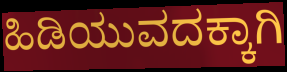
ಹಿಡಿಯುವದಕ್ಕಾಗಿ